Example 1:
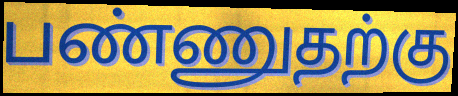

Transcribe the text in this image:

பண்ணுதற்கு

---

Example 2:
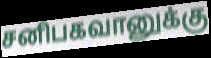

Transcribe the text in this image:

சனிபகவானுக்கு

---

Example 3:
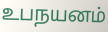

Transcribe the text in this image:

உபநயனம்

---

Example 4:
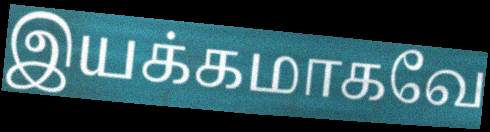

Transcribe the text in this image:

இயக்கமாகவே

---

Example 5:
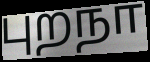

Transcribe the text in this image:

புறநா